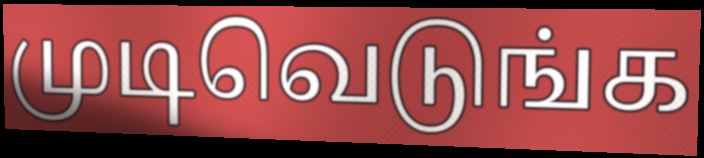
முடிவெடுங்க